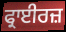
ਫ੍ਰਾਈਰਜ਼